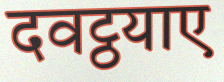
दवट्ठयाए